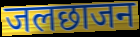
जलछाजन